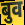
बुव